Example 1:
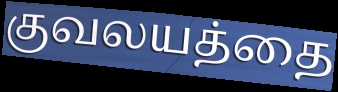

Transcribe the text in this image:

குவலயத்தை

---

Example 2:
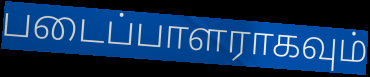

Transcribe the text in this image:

படைப்பாளராகவும்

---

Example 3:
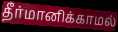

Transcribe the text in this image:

தீர்மானிக்காமல்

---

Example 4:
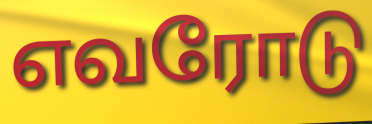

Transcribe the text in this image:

எவரோடு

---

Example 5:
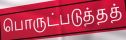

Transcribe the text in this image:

பொருட்படுத்தத்